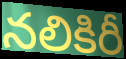
నలికిరీ